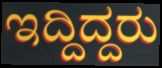
ಇದ್ದಿದ್ದರು